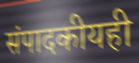
संपादकीयही